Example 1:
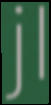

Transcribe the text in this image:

jl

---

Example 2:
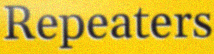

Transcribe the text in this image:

Repeaters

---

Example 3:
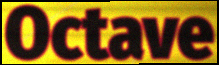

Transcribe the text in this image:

Octave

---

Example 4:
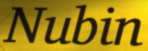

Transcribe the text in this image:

Nubin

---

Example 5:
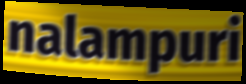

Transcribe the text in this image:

nalampuri